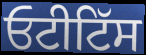
ਓਟੀਟਿੱਸ